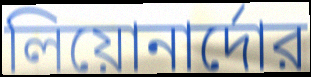
লিয়োনার্দোর